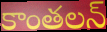
కాంతలన్